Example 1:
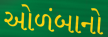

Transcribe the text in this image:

ઓળંબાનો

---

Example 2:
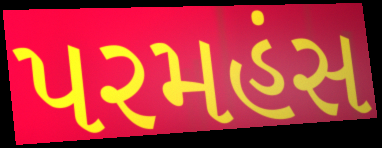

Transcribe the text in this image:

પરમહંસ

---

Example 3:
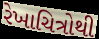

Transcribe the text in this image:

રેખાચિત્રોથી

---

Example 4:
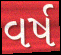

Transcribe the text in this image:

વર્ષ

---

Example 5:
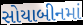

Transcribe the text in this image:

સોયાબીનમાં